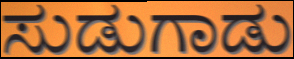
ಸುಡುಗಾಡು